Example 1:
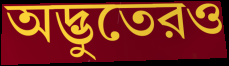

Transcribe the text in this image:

অদ্ভুতেরও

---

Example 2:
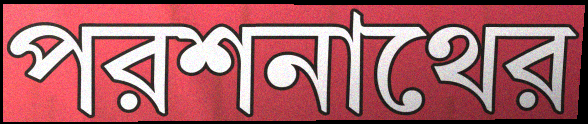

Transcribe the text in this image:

পরশনাথের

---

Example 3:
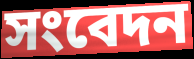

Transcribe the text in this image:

সংবেদন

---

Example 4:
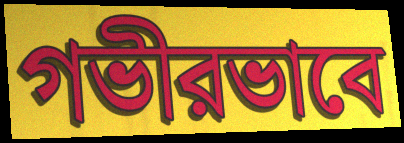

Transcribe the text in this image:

গভীরভাবে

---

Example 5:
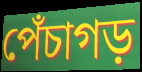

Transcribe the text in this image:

পেঁচাগড়